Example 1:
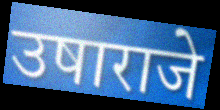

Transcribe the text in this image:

उषाराजे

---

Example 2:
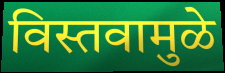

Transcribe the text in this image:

विस्तवामुळे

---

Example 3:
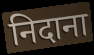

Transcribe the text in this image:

निदाना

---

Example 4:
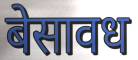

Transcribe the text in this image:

बेसावध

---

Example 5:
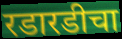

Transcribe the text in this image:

रडारडीचा